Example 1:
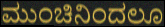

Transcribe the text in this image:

ಮುಂಚಿನಿಂದಲೂ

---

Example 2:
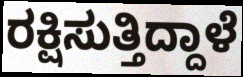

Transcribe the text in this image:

ರಕ್ಷಿಸುತ್ತಿದ್ದಾಳೆ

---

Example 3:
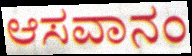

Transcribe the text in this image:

ಆಸವಾನಂ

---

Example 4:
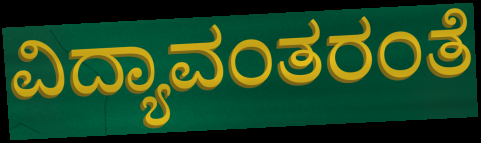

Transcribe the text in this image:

ವಿದ್ಯಾವಂತರಂತೆ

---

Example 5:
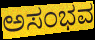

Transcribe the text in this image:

ಅಸಂಭವ